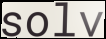
solv